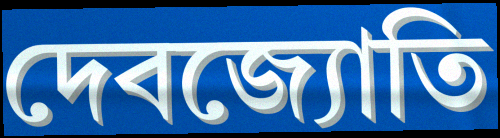
দেবজ্যোতি